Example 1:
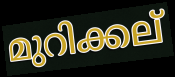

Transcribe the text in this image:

മുറിക്കല്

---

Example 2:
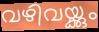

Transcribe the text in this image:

വഴിവയ്ക്കും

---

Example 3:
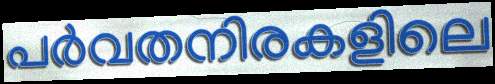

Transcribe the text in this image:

പർവതനിരകളിലെ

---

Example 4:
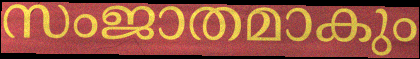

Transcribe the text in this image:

സംജാതമാകും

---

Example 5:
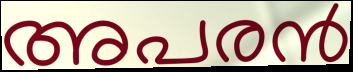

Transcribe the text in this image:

അപരൻ